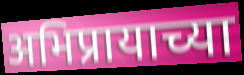
अभिप्रायाच्या